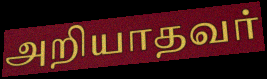
அறியாதவர்